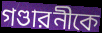
গণ্ডারনীকে